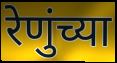
रेणुंच्या